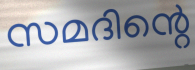
സമദിന്റെ